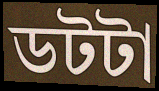
ডটটা